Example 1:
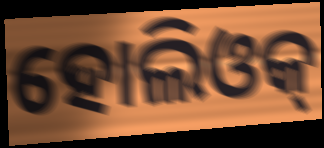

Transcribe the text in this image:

ହୋଲିଓକ୍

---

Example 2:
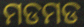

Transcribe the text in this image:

ମଡମଡ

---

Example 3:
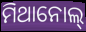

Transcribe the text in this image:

ମିଥାନୋଲ୍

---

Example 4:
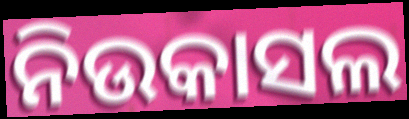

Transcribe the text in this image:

ନିଉକାସଲ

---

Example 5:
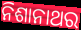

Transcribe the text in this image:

ନିଶାନାଥର